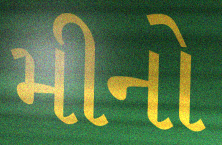
મીનો